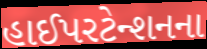
હાઈપરટેન્શનના